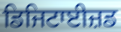
ਡਿਜਿਟਾਈਜ਼ਡ